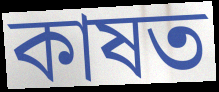
কাষত